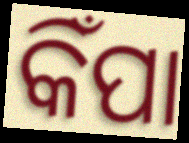
କିଁପା